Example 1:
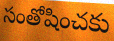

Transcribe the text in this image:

సంతోషించకు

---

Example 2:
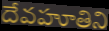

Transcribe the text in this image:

దేవహూతిని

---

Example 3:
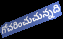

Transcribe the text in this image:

గోచరించుచున్నది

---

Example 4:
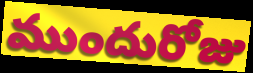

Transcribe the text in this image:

ముందురోజు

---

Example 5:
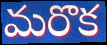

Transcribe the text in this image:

మరొక